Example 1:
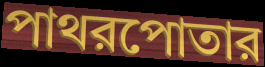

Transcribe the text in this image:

পাথরপোতার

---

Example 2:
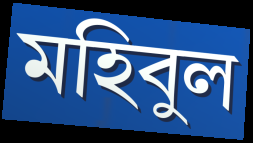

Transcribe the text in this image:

মহিবুল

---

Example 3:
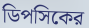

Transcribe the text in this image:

ডিপসিকের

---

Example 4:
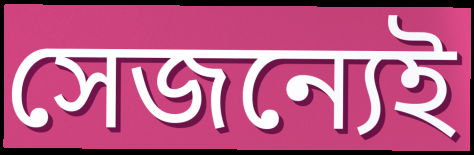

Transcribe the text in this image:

সেজন্যেই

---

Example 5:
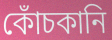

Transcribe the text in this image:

কোঁচকানি